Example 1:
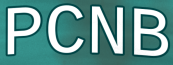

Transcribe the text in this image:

PCNB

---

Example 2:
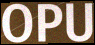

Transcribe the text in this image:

OPU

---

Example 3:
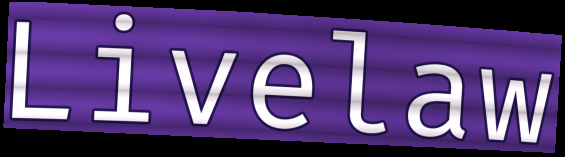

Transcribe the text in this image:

Livelaw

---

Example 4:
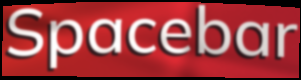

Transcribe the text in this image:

Spacebar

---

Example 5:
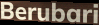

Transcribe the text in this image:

Berubari